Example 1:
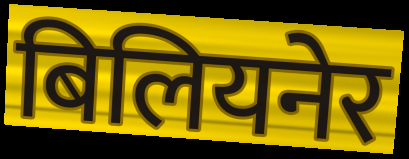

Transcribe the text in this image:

बिलियनेर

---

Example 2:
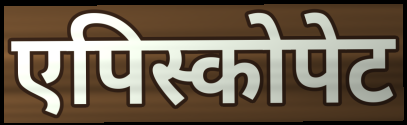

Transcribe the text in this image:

एपिस्कोपेट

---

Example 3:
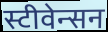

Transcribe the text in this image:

स्टीवेन्सन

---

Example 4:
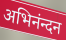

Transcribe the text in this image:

अभिनंन्दन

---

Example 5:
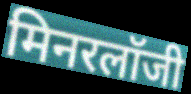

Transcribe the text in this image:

मिनरलॉजी